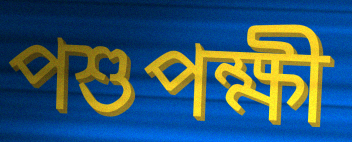
পশুপক্ষী